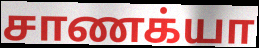
சாணக்யா